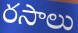
రసాలు